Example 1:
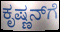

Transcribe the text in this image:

ಕೃಷ್ಣನ್‌ಗೆ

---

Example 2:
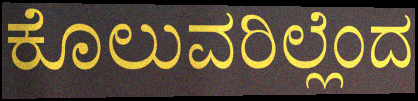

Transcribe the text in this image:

ಕೊಲುವರಿಲ್ಲೆಂದ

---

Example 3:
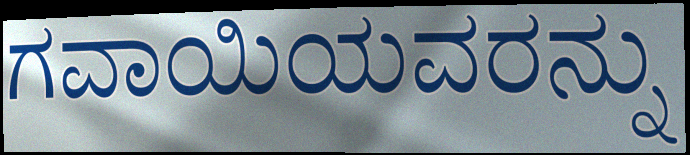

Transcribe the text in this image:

ಗವಾಯಿಯವರನ್ನು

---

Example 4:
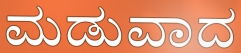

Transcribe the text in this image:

ಮಡುವಾದ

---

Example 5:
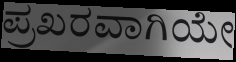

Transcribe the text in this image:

ಪ್ರಖರವಾಗಿಯೇ